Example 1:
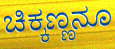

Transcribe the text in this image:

ಚಿಕ್ಕಣ್ಣನೂ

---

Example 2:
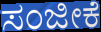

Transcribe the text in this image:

ಸಂಜೀಕೆ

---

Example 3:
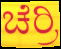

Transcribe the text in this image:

ಚೆರ‍್ರಿ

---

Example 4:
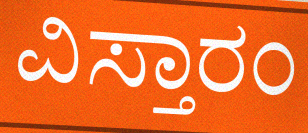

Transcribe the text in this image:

ವಿಸ್ತಾರಂ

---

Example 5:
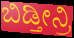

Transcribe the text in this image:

ಬಿಡ್ತೀನ್ರಿ